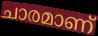
ചാരമാണ്